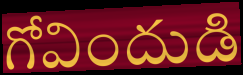
గోవిందుడి